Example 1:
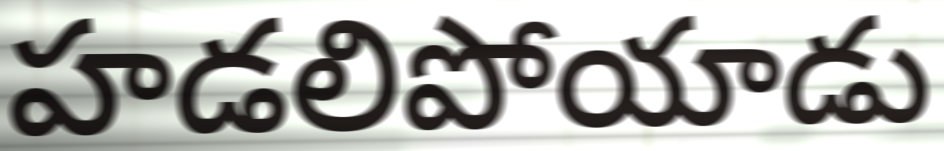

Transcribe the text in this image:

హడలిపోయాడు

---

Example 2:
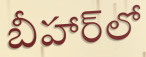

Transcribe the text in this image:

బీహార్‌లో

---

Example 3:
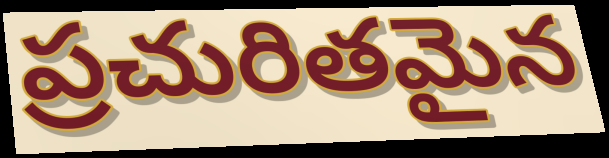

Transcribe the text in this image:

ప్రచురితమైన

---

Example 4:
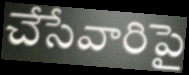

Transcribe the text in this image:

చేసేవారిపై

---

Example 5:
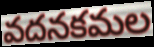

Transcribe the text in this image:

వదనకమల